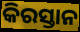
କିରସ୍ତାନ